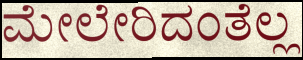
ಮೇಲೇರಿದಂತೆಲ್ಲ